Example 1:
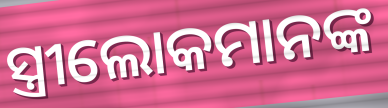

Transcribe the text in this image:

ସ୍ତ୍ରୀଲୋକମାନଙ୍କ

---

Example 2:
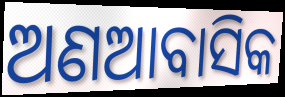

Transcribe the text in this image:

ଅଣଆବାସିକ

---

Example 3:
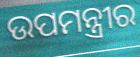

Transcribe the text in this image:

ଉପମନ୍ତ୍ରୀର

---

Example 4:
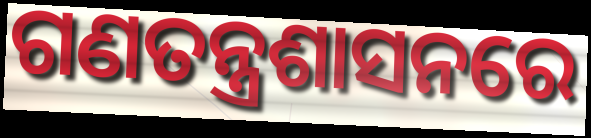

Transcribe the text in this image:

ଗଣତନ୍ତ୍ରଶାସନରେ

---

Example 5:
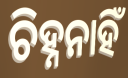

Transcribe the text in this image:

ଚିହ୍ନନାହିଁ